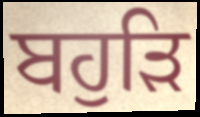
ਬਹੁੜਿ